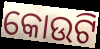
କୋଉଟି